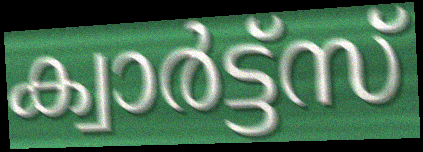
ക്വാർട്ട്സ്